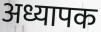
अध्यापक